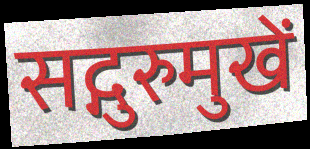
सद्गुरुमुखें